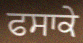
ਫਸਾਕੇ